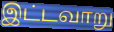
இட்டவாறு